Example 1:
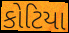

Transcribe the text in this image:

કોટિયા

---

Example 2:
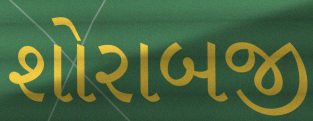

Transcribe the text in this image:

શોરાબજી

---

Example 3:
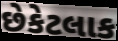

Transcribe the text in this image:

છેકેટલાક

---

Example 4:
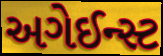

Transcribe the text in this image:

અગેઈન્સ્ટ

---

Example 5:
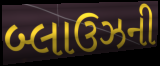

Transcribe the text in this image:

બ્લાઉઝની